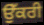
ਉੱਕਰੀ